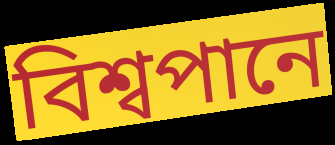
বিশ্বপানে